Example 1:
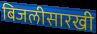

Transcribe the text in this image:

बिजलीसारखी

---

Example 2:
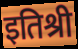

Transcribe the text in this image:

इतिश्री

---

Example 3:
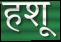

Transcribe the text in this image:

हशू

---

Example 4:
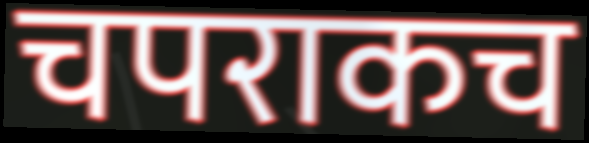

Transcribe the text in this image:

चपराकच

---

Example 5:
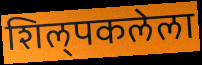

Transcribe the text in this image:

शिल्पकलेला